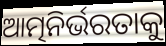
ଆତ୍ମନିର୍ଭରତାକୁ